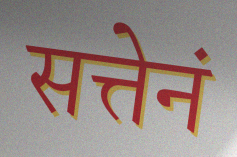
सत्तेनं